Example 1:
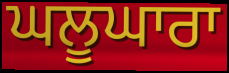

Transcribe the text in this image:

ਘਲੂਘਾਰਾ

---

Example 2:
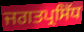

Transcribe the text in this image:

ਜਗਤਪ੍ਰਸਿੱਧ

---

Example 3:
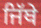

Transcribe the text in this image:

ਜਿੱਥੇ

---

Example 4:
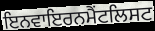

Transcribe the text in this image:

ਇਨਵਾਇਰਨਮੈਂਟਲਿਸਟ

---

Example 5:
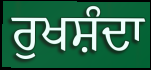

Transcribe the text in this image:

ਰੁਖਸ਼ੰਦਾ